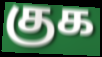
குக